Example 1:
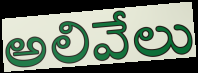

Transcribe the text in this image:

అలివేలు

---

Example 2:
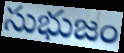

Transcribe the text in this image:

సుభుజం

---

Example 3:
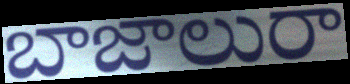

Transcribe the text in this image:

బాజాలురా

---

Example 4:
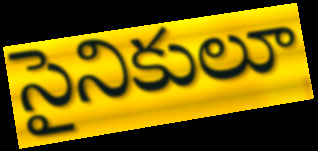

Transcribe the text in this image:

సైనికులూ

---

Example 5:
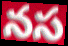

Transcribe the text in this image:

నస